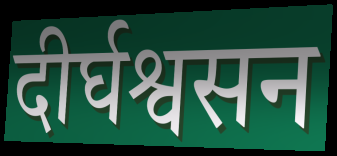
दीर्घश्वसन